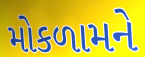
મોકળામને